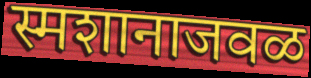
स्मशानाजवळ